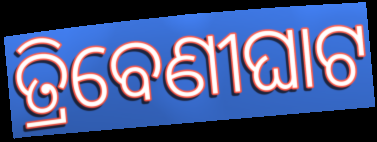
ତ୍ରିବେଣୀଘାଟ